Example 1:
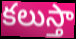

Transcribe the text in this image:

కలుస్తా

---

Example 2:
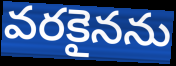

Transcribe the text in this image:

వరకైనను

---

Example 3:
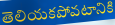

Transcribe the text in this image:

తెలియకపోవటానికి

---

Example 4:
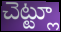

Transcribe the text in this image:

చెట్ట్లూ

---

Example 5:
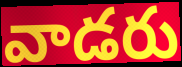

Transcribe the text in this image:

వాడరు